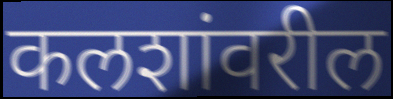
कलशांवरील